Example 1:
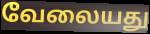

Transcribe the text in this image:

வேலையது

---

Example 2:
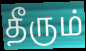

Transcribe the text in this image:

தீரும்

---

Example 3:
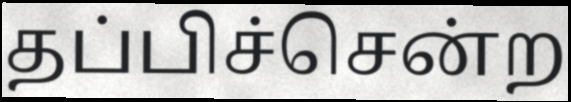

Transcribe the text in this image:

தப்பிச்சென்ற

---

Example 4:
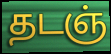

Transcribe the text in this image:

தடஞ்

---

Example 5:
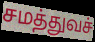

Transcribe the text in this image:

சமத்துவச்